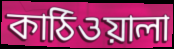
কাঠিওয়ালা